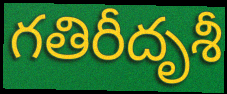
గతిరీదృశీ